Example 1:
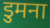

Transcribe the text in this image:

डुमना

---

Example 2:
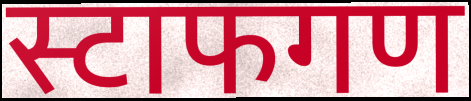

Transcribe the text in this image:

स्टाफगण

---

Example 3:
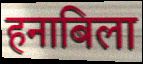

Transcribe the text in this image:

हनाबिला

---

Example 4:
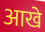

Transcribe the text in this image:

आखे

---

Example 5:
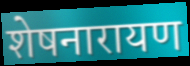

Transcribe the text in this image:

शेषनारायण